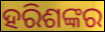
ହରିଶଙ୍କର